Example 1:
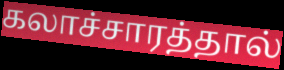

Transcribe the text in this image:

கலாச்சாரத்தால்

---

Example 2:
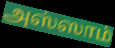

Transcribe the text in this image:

அஸ்ஸாம்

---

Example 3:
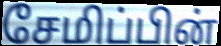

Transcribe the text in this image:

சேமிப்பின்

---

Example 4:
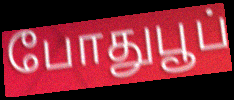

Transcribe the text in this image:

போதுபூப்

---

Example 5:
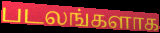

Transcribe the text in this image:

படலங்களாக